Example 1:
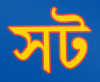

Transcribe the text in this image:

সট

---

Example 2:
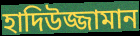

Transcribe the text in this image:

হাদিউজ্জামান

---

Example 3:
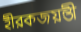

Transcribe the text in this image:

হীরকজয়ন্তী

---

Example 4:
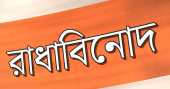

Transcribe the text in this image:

রাধাবিনোদ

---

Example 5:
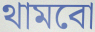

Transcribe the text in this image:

থামবো